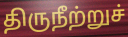
திருநீற்றுச்